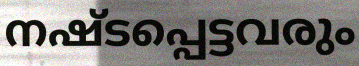
നഷ്ടപ്പെട്ടവരും